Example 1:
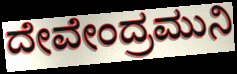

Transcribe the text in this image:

ದೇವೇಂದ್ರಮುನಿ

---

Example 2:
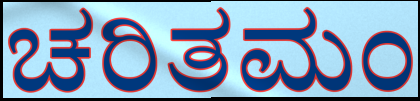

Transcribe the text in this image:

ಚರಿತಮಂ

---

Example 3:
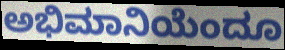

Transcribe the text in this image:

ಅಭಿಮಾನಿಯೆಂದೂ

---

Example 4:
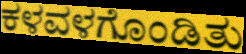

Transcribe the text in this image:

ಕಳವಳಗೊಂಡಿತು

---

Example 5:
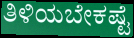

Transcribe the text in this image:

ತಿಳಿಯಬೇಕಷ್ಟೆ